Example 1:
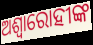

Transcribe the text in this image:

ଅଶ୍ୱାରୋହୀଙ୍କ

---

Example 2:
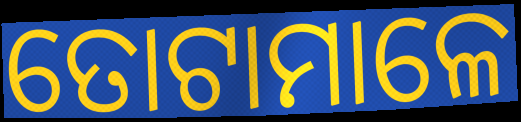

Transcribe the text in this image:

ତୋଟାମାଳେ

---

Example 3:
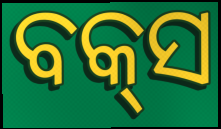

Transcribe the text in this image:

ବକ୍‌ସ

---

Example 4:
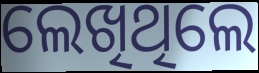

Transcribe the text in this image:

ଲେଖିଥିଲେ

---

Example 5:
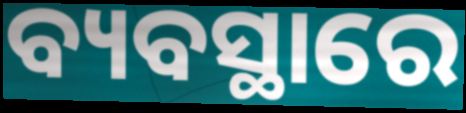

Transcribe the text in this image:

ବ୍ୟବସ୍ଥାରେ